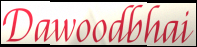
Dawoodbhai